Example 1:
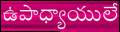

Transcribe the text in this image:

ఉపాధ్యాయులే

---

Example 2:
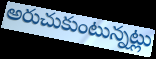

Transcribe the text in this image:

అరుచుకుంటున్నట్లు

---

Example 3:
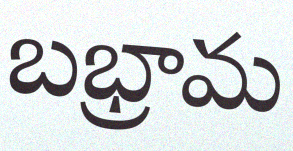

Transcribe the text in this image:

బభ్రామ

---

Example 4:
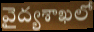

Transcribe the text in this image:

వైద్యశాఖలో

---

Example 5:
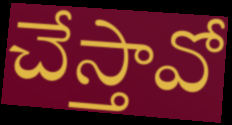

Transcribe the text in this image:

చేస్తావో